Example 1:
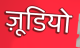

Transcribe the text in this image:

ज़ूडियो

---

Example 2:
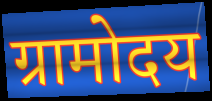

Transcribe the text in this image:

ग्रामोदय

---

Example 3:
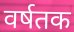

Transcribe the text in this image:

वर्षतक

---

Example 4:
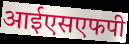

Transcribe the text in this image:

आईएसएफपी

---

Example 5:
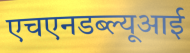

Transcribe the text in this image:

एचएनडब्ल्यूआई